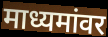
माध्यमांवर